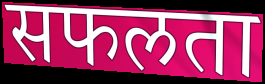
सफलता